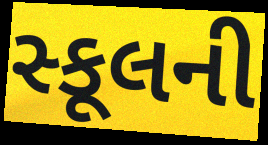
સ્કૂલની